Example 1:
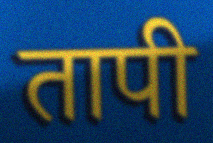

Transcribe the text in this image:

तापी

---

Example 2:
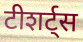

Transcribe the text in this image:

टीशर्ट्स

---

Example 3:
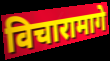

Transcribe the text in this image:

विचारामागे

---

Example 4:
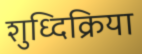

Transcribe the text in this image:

शुध्दिक्रिया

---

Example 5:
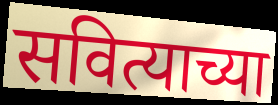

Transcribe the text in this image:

सवित्याच्या